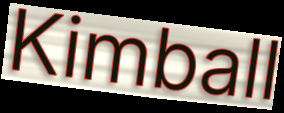
Kimball